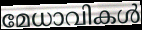
മേധാവികൾ